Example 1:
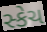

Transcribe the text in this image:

સ્કેચ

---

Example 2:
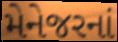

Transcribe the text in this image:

મેનેજરનાં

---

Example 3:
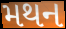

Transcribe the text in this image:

મથન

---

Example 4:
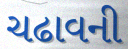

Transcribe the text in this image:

ચઢાવની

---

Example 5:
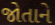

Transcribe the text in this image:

જોતાને